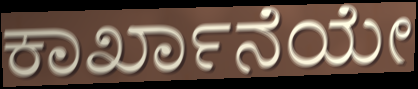
ಕಾರ್ಖಾನೆಯೇ